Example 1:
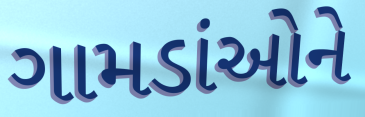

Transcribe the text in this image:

ગામડાંઓને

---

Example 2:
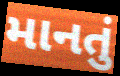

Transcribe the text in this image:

માનતું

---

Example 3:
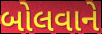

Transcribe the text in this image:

બોલવાને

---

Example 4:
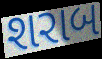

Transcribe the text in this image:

શરાબ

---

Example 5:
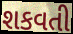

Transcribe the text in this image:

શકવતી